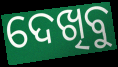
ଦେଖିବୁ